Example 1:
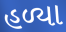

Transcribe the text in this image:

હળ્યા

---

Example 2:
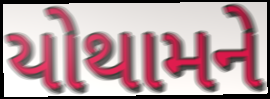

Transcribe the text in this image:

યોથામને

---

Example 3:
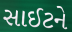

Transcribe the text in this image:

સાઈટને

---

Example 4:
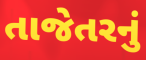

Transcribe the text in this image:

તાજેતરનું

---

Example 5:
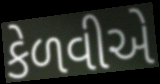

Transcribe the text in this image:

કેળવીએ